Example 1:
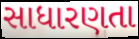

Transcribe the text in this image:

સાધારણતા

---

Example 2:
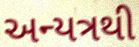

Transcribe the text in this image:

અન્યત્રથી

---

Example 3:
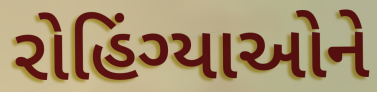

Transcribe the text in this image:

રોહિંગ્યાઓને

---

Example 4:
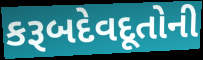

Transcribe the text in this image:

કરૂબદેવદૂતોની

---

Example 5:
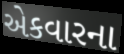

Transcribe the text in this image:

એકવારના